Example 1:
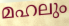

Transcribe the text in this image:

മഹലും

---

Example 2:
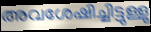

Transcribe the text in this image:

അവശേഷിച്ചിട്ടുള്ളു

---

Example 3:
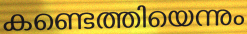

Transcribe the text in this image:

കണ്ടെത്തിയെന്നും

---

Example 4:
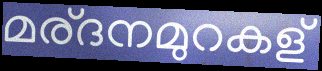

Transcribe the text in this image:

മര്ദനമുറകള്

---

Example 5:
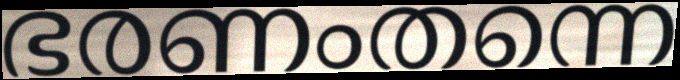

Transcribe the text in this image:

ഭരണംതന്നെ